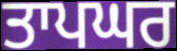
ਤਾਪਘਰ